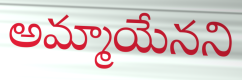
అమ్మాయేనని